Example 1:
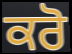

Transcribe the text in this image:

ਕਰੋ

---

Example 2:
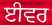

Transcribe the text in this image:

ਈਵਰ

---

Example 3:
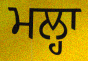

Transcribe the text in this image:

ਮਲ੍ਹਾ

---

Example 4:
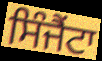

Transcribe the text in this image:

ਸਿੰਜੈਂਟਾ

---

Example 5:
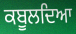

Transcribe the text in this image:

ਕਬੂਲਦਿਆ